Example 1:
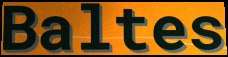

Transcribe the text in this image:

Baltes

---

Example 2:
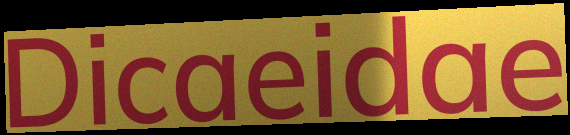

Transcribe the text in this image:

Dicaeidae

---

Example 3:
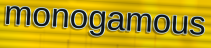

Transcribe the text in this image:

monogamous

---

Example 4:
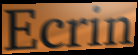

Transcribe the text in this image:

Ecrin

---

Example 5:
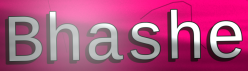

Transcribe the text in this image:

Bhashe